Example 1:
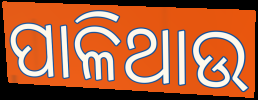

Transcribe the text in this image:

ପାଳିଥାଉ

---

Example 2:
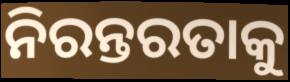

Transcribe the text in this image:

ନିରନ୍ତରତାକୁ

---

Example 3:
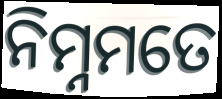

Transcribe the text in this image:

ନିମ୍ନମତେ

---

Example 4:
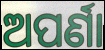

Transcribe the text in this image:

ଅପର୍ଣା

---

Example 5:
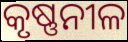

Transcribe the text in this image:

କୃଷ୍ଣନୀଳ